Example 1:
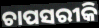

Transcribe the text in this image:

ଚାପସରୀକି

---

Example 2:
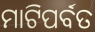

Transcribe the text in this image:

ମାଟିପର୍ବତ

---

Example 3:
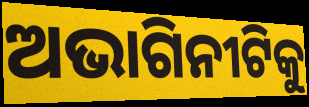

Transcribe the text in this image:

ଅଭାଗିନୀଟିକୁ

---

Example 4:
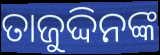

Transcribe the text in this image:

ତାଜୁଦ୍ଦିନଙ୍କ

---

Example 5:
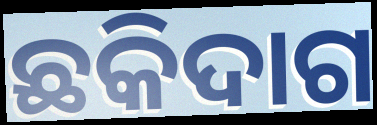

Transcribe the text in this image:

ଛକିଦାଗ